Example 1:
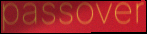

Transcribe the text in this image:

passover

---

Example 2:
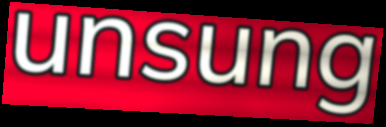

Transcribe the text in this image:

unsung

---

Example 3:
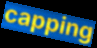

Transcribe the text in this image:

capping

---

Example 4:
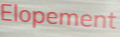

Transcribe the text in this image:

Elopement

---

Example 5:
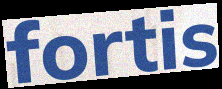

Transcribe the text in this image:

fortis